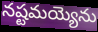
నష్టమయ్యెను